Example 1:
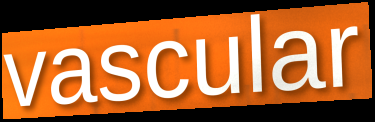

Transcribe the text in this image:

vascular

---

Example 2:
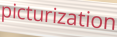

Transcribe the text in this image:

picturization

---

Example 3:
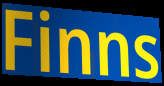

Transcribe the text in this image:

Finns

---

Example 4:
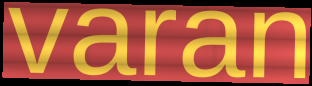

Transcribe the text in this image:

varan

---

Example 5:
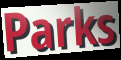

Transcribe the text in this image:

Parks